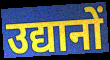
उद्यानों